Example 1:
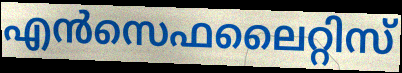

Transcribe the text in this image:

എൻസെഫലൈറ്റിസ്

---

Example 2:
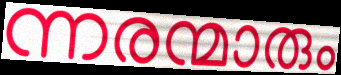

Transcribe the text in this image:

ന്നരന്മാരും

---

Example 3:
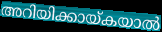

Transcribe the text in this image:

അറിയിക്കായ്കയാൽ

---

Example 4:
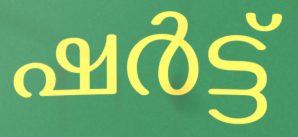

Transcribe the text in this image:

ഷർട്ട്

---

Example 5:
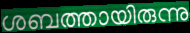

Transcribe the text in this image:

ശബത്തായിരുന്നു